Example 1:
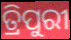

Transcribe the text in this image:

ତ୍ରିପୁରୀ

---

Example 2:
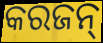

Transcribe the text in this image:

କରଜନ୍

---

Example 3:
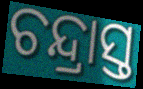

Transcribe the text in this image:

ଚନ୍ଦ୍ରାସ୍ତ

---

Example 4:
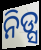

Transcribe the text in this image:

ନିଡ୍ସ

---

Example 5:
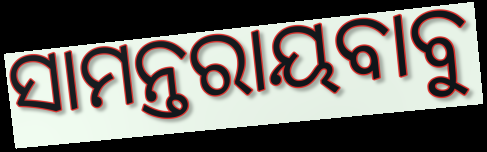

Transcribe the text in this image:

ସାମନ୍ତରାୟବାବୁ